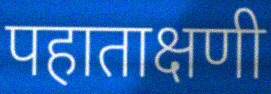
पहाताक्षणी